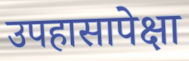
उपहासापेक्षा